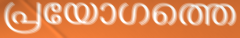
പ്രയോഗത്തെ